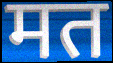
मत